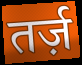
तर्ज़